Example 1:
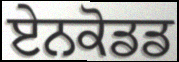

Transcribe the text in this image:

ਏਨਕੋਡਡ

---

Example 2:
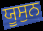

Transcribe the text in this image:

ਯੂਸੁਨ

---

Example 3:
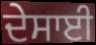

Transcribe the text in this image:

ਦੇਸਾਈ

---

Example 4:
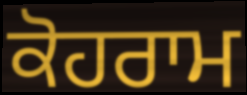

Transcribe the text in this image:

ਕੋਹਰਾਮ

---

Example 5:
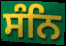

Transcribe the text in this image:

ਸੰਨਿ